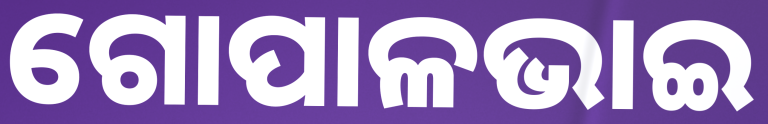
ଗୋପାଳଭାଇ